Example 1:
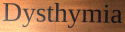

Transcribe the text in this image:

Dysthymia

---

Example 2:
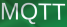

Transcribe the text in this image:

MQTT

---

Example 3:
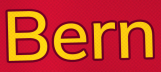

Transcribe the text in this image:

Bern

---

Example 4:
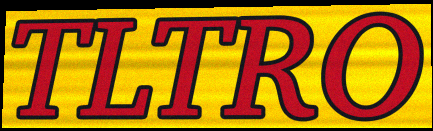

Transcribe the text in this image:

TLTRO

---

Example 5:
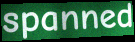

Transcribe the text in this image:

spanned